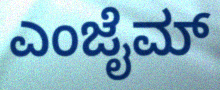
ಎಂಜೈಮ್